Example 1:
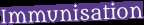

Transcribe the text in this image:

Immunisation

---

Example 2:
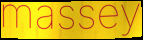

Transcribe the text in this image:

massey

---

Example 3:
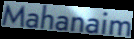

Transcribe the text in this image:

Mahanaim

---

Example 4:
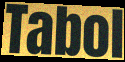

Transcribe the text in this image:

Tabol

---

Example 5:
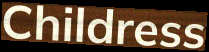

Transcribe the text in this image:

Childress